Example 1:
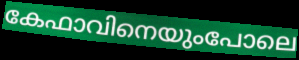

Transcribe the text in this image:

കേഫാവിനെയുംപോലെ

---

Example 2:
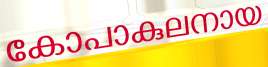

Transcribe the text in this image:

കോപാകുലനായ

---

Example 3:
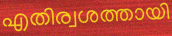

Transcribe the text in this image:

എതിര്വശത്തായി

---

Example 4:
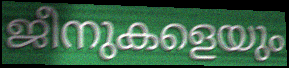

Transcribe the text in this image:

ജീനുകളെയും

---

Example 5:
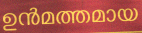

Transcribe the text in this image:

ഉൻമത്തമായ